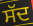
ਸੱਦ